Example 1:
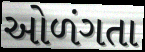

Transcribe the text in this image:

ઓળંગતા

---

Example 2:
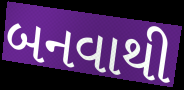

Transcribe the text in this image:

બનવાથી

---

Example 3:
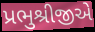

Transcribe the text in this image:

પ્રભુશ્રીજીએ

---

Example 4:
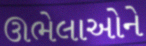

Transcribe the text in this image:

ઊભેલાઓને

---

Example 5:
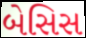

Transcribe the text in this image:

બેસિસ